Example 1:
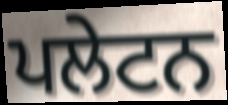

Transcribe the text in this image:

ਪਲੇਟਨ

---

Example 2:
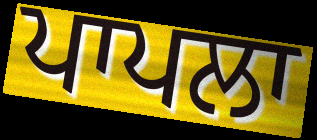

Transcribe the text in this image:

ਪਾਪਲਾ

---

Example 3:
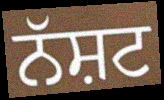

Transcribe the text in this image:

ਨੱਸ਼ਟ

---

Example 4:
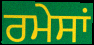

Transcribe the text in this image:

ਰਮੇਸਾਂ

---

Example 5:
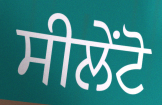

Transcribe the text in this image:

ਸੀਲੇਂਟੋ